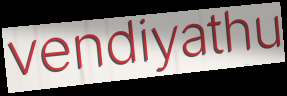
vendiyathu